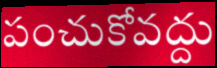
పంచుకోవద్దు